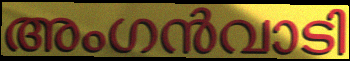
അംഗൻവാടി